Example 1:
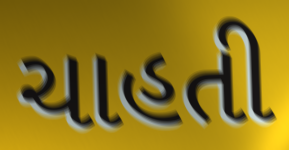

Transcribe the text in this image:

ચાહતી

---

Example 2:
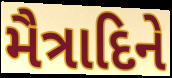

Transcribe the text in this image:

મૈત્રાદિને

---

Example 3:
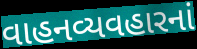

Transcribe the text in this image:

વાહનવ્યવહારનાં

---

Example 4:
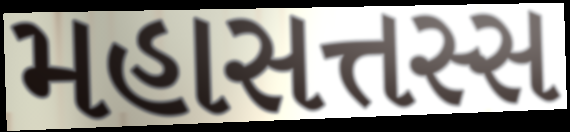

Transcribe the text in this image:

મહાસત્તસ્સ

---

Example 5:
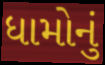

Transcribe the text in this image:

ધામોનું